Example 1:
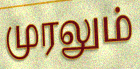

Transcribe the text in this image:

முரலும்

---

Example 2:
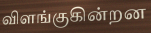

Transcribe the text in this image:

விளங்குகின்றன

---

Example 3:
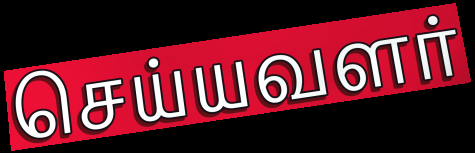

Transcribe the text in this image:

செய்யவளர்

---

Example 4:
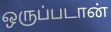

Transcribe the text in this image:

ஒருப்படான்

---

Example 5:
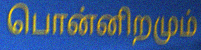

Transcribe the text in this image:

பொன்னிறமும்